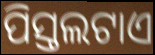
ପିସ୍ତଲଟାଏ